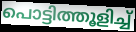
പൊട്ടിത്തൂളിച്ച്